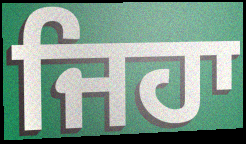
ਜਿਹਾ